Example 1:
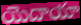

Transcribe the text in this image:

యెదాయా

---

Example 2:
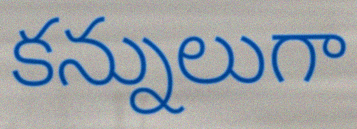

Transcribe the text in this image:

కన్నులుగా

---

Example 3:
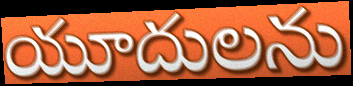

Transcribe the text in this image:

యూదులను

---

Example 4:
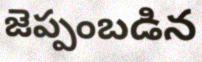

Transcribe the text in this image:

జెప్పంబడిన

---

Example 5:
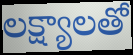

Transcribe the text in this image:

లక్ష్యాలతో